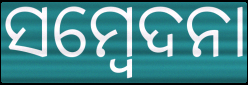
ସମ୍ବେଦନା